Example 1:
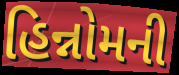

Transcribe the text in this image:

હિન્નોમની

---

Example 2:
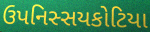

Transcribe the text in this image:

ઉપનિસ્સયકોટિયા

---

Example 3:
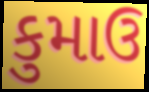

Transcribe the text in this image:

કુમાઉ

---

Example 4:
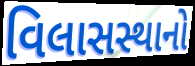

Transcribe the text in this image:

વિલાસસ્થાનો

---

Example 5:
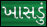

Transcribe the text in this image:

ખાસડું